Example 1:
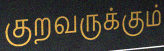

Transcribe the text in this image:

குறவருக்கும்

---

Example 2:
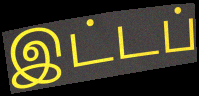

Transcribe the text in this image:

இட்டப்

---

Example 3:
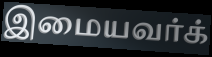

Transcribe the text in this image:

இமையவர்க்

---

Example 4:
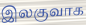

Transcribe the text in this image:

இலகுவாக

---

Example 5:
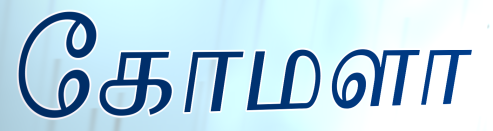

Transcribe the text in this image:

கோமளா